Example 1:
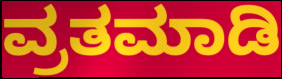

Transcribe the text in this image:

ವ್ರತಮಾಡಿ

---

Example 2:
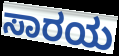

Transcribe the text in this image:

ಸಾರಯ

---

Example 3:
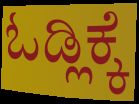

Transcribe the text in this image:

ಓಡ್ಲಿಕ್ಕೆ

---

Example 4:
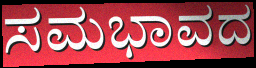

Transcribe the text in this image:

ಸಮಭಾವದ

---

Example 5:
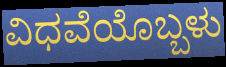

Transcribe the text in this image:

ವಿಧವೆಯೊಬ್ಬಳು